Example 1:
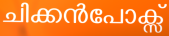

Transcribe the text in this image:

ചിക്കൻപോക്സ്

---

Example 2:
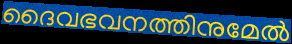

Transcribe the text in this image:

ദൈവഭവനത്തിനുമേൽ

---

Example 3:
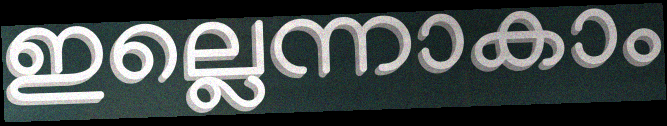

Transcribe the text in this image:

ഇല്ലെന്നാകാം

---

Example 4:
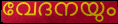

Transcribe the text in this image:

വേദനയും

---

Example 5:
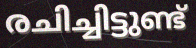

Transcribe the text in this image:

രചിച്ചിട്ടുണ്ട്